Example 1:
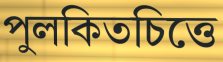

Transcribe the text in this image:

পুলকিতচিত্তে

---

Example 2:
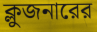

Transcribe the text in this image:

ক্লুজনারের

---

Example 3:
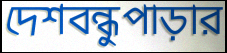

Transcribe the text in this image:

দেশবন্ধুপাড়ার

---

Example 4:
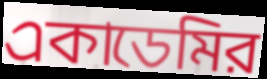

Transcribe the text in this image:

একাডেমির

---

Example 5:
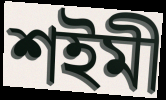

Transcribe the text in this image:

শইমী